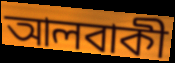
আলবাকী